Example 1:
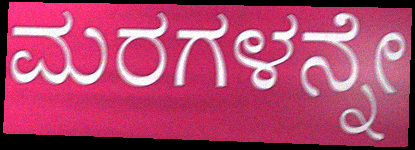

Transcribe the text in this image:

ಮರಗಳನ್ನೇ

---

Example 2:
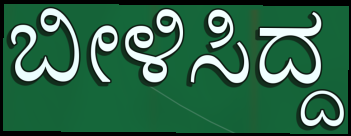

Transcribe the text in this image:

ಬೀಳಿಸಿದ್ದ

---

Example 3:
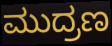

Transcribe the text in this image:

ಮುದ್ರಣ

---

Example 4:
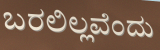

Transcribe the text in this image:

ಬರಲಿಲ್ಲವೆಂದು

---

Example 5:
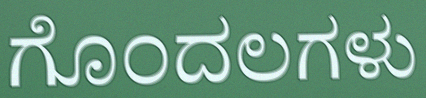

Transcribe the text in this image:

ಗೊಂದಲಗಳು